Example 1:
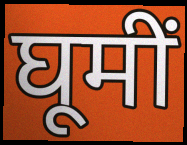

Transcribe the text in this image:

घूमीं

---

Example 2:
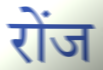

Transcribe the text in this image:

रोंज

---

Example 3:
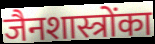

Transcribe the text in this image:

जैनशास्त्रोंका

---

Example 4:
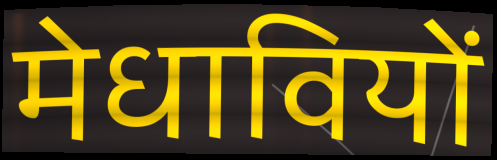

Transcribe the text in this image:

मेधावियों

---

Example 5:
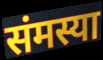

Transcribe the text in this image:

संमस्या